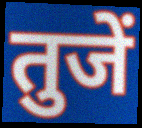
तुजें